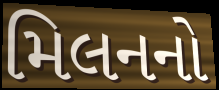
મિલનનો